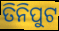
ତିନିପୁଟ